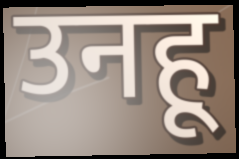
उनहू